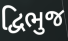
દ્વિભુજ